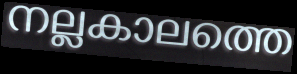
നല്ലകാലത്തെ